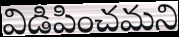
విడిపించమని